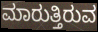
ಮಾರುತ್ತಿರುವ